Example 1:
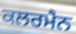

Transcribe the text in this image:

ਕਲਰਮੈਨ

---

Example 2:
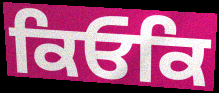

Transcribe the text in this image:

ਕਿਓਕਿ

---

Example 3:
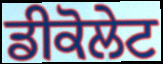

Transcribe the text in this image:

ਡੀਕੋਲੇਟ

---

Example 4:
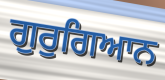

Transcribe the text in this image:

ਗੁਰੁਗਿਆਨ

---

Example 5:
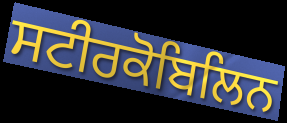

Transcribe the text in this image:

ਸਟੀਰਕੋਬਿਲਿਨ